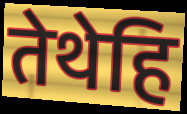
तेथेहि